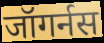
जॉगर्नस